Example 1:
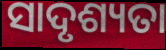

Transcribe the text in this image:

ସାଦୃଶ୍ୟତା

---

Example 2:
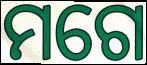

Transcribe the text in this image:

ମଗେ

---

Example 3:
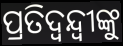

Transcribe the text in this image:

ପ୍ରତିଦ୍ବନ୍ଦ୍ବୀଙ୍କୁ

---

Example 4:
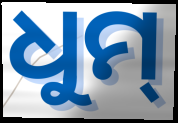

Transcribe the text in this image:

ଧୁମ୍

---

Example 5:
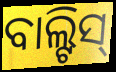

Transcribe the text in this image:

ବାଲ୍ଟିସ୍